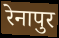
रेनापुर